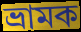
ভ্রামক